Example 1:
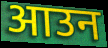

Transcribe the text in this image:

आउन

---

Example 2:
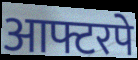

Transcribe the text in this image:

आफ्टरपे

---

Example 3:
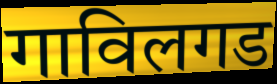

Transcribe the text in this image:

गाविलगड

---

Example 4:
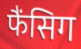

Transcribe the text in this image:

फैंसिग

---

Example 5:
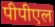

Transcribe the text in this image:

पीपीएल